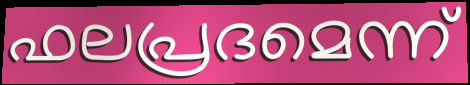
ഫലപ്രദമെന്ന്